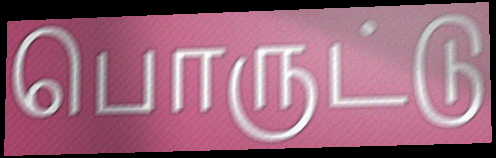
பொருட்டு